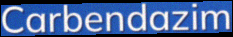
Carbendazim